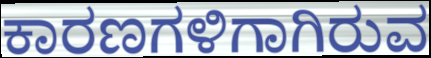
ಕಾರಣಗಳಿಗಾಗಿರುವ